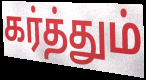
கர்த்தும்